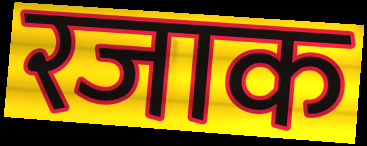
रजाक